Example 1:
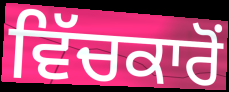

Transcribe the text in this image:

ਵਿੱਚਕਾਰੋਂ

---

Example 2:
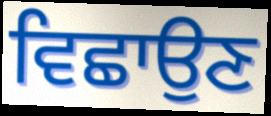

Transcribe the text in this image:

ਵਿਛਾਉਣ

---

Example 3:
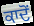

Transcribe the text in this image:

ਕਾਦੋਂ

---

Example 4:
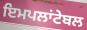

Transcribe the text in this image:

ਇਮਪਲਾਂਟੇਬਲ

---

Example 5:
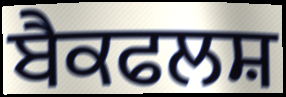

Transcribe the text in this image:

ਬੈਕਫਲਸ਼